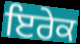
ਇਰੇਕ